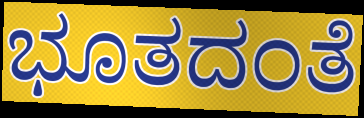
ಭೂತದಂತೆ